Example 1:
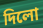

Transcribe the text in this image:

দিলো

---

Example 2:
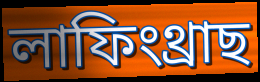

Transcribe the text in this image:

লাফিংথ্ৰাছ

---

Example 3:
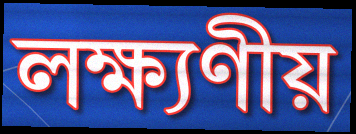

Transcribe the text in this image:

লক্ষ্যণীয়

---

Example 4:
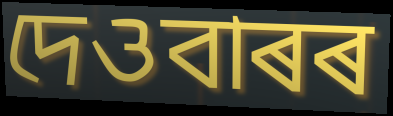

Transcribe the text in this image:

দেওবাৰৰ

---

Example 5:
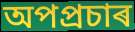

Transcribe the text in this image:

অপপ্ৰচাৰ